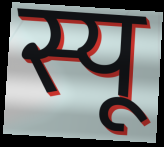
स्यू